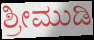
ಶ್ರೀಮುಡಿ